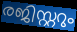
രജിസ്റ്ററും